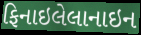
ફિનાઇલેલાનાઇન